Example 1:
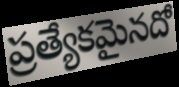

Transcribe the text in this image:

ప్రత్యేకమైనదో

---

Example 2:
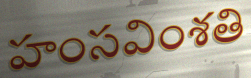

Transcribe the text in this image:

హంసవింశతి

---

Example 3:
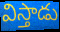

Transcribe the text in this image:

విస్తాడు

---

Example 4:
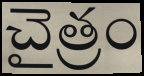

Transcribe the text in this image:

చైత్రం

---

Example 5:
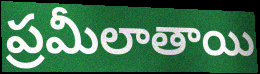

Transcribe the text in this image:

ప్రమీలాతాయి